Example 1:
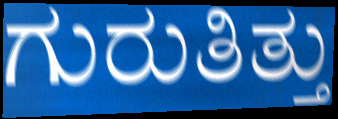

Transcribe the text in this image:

ಗುರುತಿತ್ತು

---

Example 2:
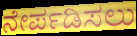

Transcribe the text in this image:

ನೇರ್ಪಡಿಸಲು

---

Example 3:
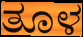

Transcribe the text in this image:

ತೂಳ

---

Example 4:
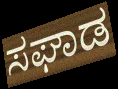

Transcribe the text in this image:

ಸಘಾಡ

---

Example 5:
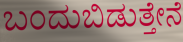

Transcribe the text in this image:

ಬಂದುಬಿಡುತ್ತೇನೆ